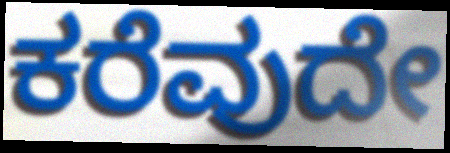
ಕರೆವುದೇ